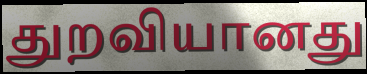
துறவியானது